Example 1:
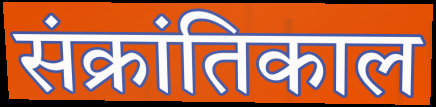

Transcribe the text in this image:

संक्रांतिकाल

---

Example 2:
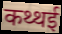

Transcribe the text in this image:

कथ्थई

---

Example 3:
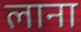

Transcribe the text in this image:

लाना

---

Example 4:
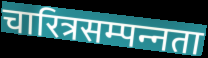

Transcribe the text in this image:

चारित्रसम्पन्नता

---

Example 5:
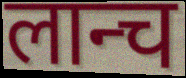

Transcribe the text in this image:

लान्‍च